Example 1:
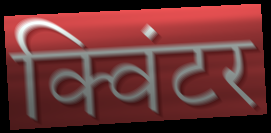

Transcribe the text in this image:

क्विंटर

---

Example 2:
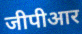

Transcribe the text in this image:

जीपीआर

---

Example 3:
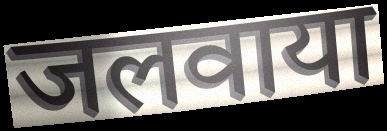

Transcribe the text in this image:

जलवाया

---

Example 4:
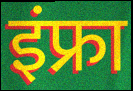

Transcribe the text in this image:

इंफ्रा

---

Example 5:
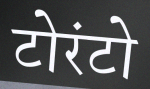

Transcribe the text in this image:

टोरंटो